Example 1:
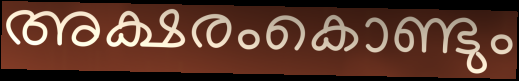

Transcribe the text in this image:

അക്ഷരംകൊണ്ടും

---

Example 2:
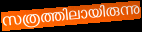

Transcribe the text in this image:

സത്രത്തിലായിരുന്നു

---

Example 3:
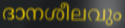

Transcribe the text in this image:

ദാനശീലവും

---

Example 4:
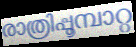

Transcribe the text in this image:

രാത്രിപ്പൂമ്പാറ്റ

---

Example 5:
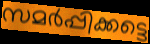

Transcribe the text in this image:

സമർപ്പിക്കട്ടെ